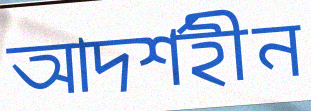
আদৰ্শহীন